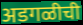
अडगळीची